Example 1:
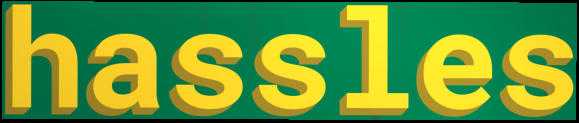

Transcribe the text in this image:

hassles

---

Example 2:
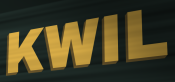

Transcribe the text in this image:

KWIL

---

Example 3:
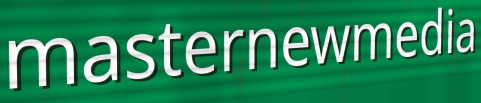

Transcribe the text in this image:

masternewmedia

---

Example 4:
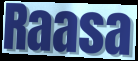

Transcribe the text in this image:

Raasa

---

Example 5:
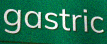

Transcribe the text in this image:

gastric